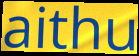
aithu